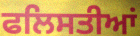
ਫਲਿਸਤੀਆਂ